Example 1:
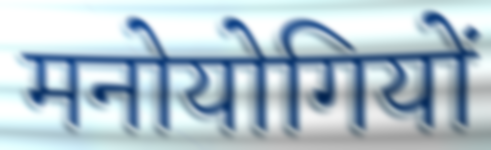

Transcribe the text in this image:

मनोयोगियों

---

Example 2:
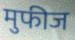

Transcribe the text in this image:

मुफीज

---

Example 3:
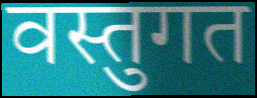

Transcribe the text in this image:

वस्तुगत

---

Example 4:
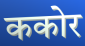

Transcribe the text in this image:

ककोर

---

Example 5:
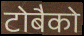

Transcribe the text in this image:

टोबैको